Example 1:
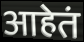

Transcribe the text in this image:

आहेतं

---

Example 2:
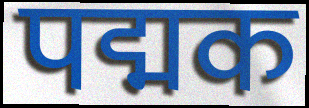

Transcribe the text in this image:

पद्मक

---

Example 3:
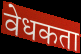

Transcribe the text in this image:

वेधकता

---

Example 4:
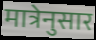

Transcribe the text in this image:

मात्रेनुसार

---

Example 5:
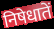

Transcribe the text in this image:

निषेधातें